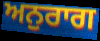
ਅਨੁਰਾਗ